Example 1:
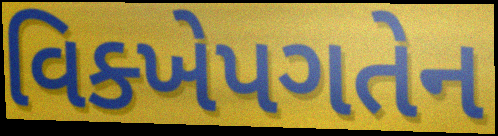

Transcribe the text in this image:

વિક્ખેપગતેન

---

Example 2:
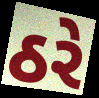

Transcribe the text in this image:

ઠરે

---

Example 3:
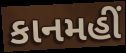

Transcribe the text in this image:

કાનમહીં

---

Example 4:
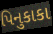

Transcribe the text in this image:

પિનુકાકા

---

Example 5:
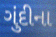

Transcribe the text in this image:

ગુંદીના